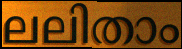
ലലിതാം